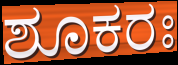
ಶೂಕರಃ